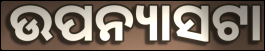
ଉପନ୍ୟାସଟା